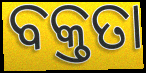
ବକ୍ତତା